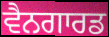
ਵੈਨਗਾਰਡ